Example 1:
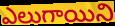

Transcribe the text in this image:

ఎలుగాయిని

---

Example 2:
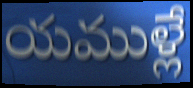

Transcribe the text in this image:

యముళ్లే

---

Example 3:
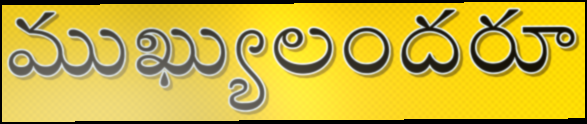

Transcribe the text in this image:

ముఖ్యులందరూ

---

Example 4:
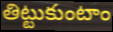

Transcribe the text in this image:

తిట్టుకుంటాం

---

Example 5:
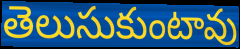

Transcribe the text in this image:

తెలుసుకుంటావు